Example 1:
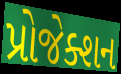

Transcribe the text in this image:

પ્રોજેક્શન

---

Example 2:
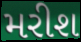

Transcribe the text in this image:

મરીશ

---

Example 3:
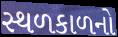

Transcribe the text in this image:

સ્થળકાળનો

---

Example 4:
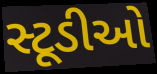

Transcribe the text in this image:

સ્ટૂડીઓ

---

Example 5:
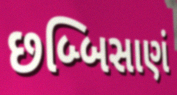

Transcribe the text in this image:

છબ્બિસાણં